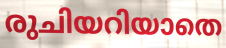
രുചിയറിയാതെ